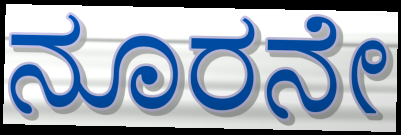
ನೂರನೇ